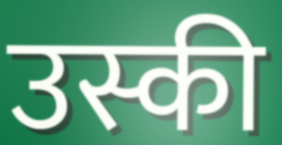
उस्‍की